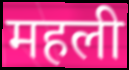
महली